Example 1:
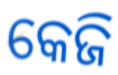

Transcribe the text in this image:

କେଜି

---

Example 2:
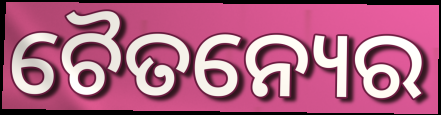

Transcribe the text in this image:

ଚୈତନ୍ୟେର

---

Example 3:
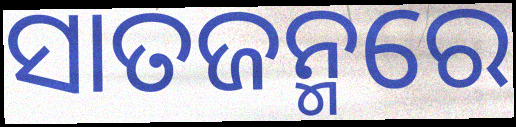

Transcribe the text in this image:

ସାତଜନ୍ମରେ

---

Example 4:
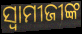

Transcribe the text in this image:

ସ୍ଵାମୀଜୀଙ୍କ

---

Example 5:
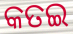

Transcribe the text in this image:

କତଇ